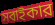
সবাইকার